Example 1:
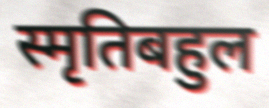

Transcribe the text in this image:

स्मृतिबहुल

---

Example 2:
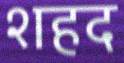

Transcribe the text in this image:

शहद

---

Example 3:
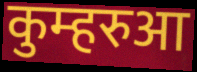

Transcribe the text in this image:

कुम्हरुआ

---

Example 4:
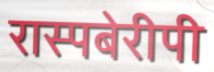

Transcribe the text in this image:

रास्पबेरीपी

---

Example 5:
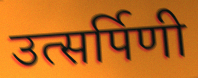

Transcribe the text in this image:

उत्सर्पिणी